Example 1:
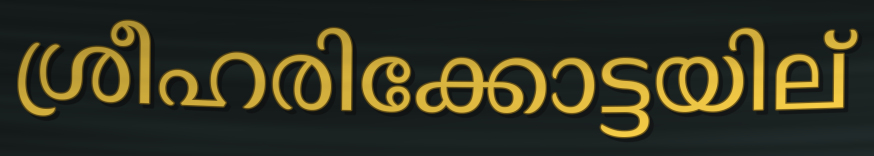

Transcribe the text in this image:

ശ്രീഹരിക്കോട്ടയില്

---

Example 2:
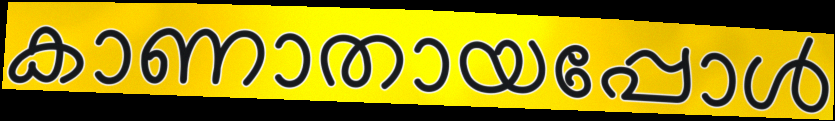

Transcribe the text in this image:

കാണാതായപ്പോൾ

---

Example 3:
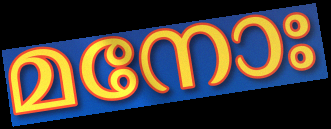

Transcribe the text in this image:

മനോഃ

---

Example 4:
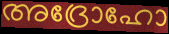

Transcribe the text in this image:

അദ്രോഹോ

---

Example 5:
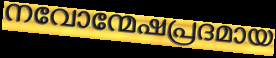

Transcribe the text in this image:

നവോന്മേഷപ്രദമായ